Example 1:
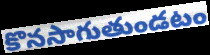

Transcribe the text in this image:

కొనసాగుతుండటం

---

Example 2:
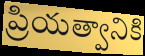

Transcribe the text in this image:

ప్రియత్వానికి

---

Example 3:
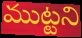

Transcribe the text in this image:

ముట్టని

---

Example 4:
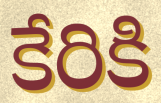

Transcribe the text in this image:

కేరికి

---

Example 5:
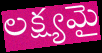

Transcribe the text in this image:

లక్ష్యమై